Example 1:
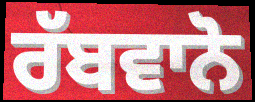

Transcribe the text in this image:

ਰੱਬਵਾਨੋ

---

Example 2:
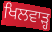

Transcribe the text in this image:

ਖਿਲਵਾੜ੍ਹ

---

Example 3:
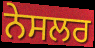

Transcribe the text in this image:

ਨੇਸਲਰ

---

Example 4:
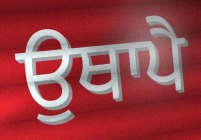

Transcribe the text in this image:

ਉਥਾਪੈ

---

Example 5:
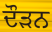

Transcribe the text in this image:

ਦੌਡ਼ਨ